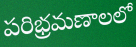
పరిభ్రమణాలలో